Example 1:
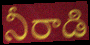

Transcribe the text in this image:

నీరాడి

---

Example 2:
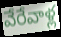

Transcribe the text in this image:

వేరేవాళ్ల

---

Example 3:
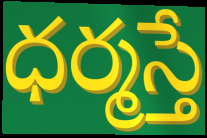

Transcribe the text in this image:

ధర్మస్తే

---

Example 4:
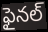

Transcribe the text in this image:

ఫైనల్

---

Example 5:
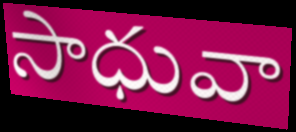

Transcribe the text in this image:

సాధువా